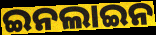
ଇନଲାଇନ